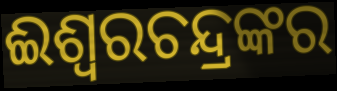
ଈଶ୍ଵରଚନ୍ଦ୍ରଙ୍କର